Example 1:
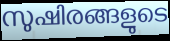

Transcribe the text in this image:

സുഷിരങ്ങളുടെ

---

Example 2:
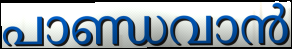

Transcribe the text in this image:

പാണ്ഡവാൻ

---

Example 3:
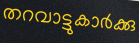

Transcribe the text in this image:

തറവാട്ടുകാർക്കു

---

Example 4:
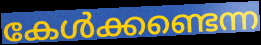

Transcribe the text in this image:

കേൾക്കണ്ടെന്ന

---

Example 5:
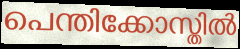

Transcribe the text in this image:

പെന്തിക്കോസ്തിൽ